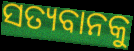
ସତ୍ୟବାନକୁ